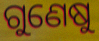
ଗୁଣେଷୁ